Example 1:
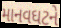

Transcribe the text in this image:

માનવઘટને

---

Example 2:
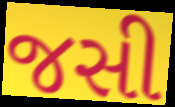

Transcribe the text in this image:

જસી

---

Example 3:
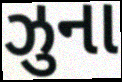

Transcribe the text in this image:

ઝુના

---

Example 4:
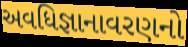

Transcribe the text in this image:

અવધિજ્ઞાનાવરણનો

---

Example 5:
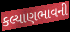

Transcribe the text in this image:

કલ્યાણભાવની